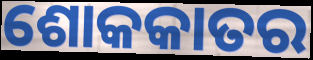
ଶୋକକାତର